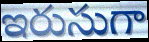
ఇరుసుగా